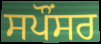
ਸਪੌਂਸਰ